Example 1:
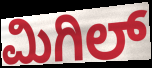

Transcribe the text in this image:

ಮಿಗಿಲ್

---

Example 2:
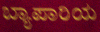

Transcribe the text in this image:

ಬ್ಯಾಪಾರಿಯ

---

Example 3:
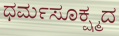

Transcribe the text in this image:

ಧರ್ಮಸೂಕ್ಷ್ಮದ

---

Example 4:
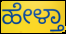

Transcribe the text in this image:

ಹೇಳ್ತಾ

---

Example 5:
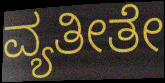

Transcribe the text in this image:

ವ್ಯತೀತೇ